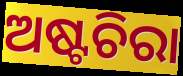
ଅଷ୍ଟଚିରା